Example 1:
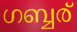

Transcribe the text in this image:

ഗബ്ബര്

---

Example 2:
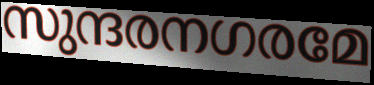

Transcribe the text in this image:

സുന്ദരനഗരമേ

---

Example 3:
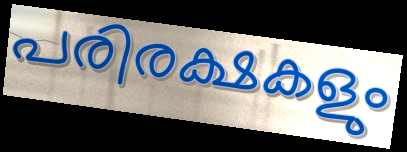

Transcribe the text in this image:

പരിരക്ഷകളും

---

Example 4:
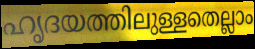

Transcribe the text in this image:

ഹൃദയത്തിലുള്ളതെല്ലാം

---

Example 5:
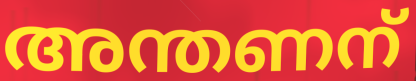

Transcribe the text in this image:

അന്തണന്